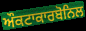
ਔਕਟਾਕਾਰਬੋਨਿਲ